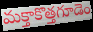
మక్తాకొత్తగూడెం